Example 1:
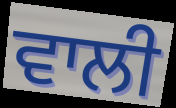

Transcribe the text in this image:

ਵਾਲੀ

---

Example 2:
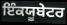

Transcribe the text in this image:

ਇੰਕਯੂਬੇਟਰ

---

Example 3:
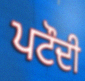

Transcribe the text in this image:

ਪਟੌਦੀ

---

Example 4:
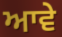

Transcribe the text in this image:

ਆਵੇ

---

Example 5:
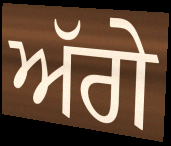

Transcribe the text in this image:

ਅੱਗੇ